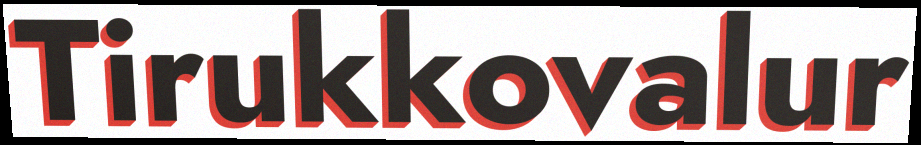
Tirukkovalur